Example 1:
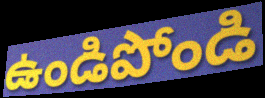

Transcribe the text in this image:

ఉండిపోండి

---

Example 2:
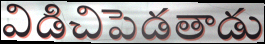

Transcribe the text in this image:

విడిచిపెడతాడు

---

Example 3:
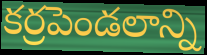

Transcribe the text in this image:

కర్రపెండలాన్ని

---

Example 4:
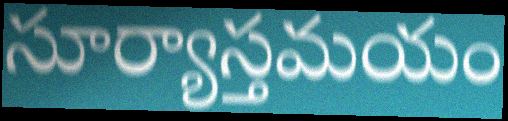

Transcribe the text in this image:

సూర్యాస్తమయం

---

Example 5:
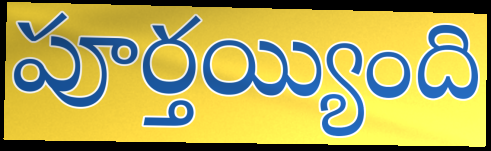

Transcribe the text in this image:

పూర్తయ్యింది